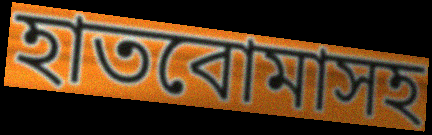
হাতবোমাসহ